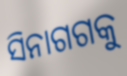
ସିନାଗଗକୁ